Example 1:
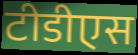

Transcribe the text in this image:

टीडीएस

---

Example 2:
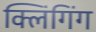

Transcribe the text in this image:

क्लिंगिंग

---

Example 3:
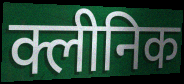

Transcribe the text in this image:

क्लीनिक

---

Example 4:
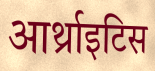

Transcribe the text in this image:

आर्थ्राइटिस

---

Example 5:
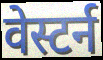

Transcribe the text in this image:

वेस्टर्न